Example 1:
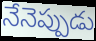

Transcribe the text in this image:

నేనెప్పుడు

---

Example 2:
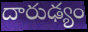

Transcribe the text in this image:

దారుఢ్యం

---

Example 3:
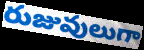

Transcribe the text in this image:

రుజువులుగా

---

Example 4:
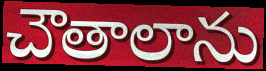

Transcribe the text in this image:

చౌతాలాను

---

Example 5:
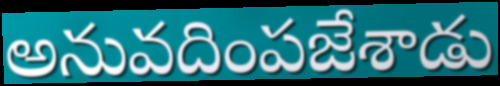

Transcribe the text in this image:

అనువదింపజేశాడు